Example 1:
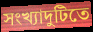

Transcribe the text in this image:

সংখ্যাদুটিতে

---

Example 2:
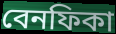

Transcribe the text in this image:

বেনফিকা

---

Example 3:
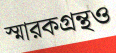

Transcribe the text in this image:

স্মারকগ্রন্থও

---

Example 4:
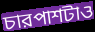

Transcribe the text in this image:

চারপাশটাও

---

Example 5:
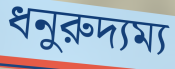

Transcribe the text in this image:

ধনুরুদ্যম্য